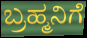
ಬ್ರಹ್ಮನಿಗೆ